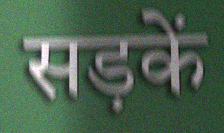
सड़कें